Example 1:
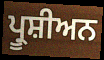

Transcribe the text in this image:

ਪ੍ਰੂਸ਼ੀਅਨ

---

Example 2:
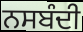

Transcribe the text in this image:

ਨਸਬੰਦੀ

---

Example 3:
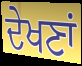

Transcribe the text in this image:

ਦੇਖਣਾਂ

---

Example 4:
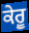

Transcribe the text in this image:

ਕੇਰੂ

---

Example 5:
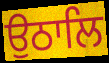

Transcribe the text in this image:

ਉਠਾਲਿ